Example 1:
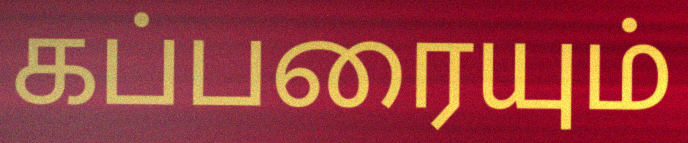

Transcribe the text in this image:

கப்பரையும்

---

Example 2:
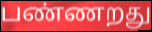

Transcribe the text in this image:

பண்ணறது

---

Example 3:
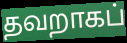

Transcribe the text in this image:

தவறாகப்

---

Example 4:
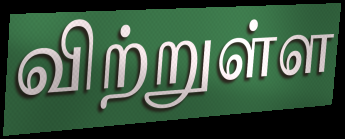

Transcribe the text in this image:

விற்றுள்ள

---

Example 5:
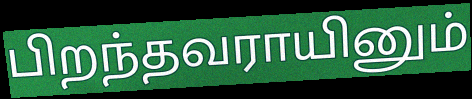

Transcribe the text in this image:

பிறந்தவராயினும்